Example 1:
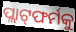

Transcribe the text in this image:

ପ୍ଲାଟ୍‌ଫର୍ମକୁ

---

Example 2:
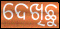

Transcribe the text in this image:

ଦେଖିଛୁ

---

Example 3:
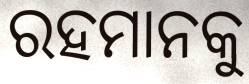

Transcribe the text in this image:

ରହମାନକୁ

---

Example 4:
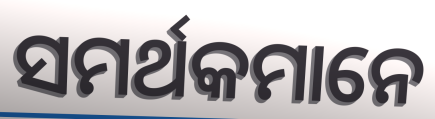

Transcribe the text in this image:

ସମର୍ଥକମାନେ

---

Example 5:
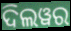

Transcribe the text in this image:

ଦିଲୱର